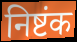
निष्टंक